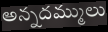
అన్నదమ్ములు